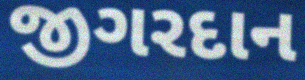
જીગરદાન